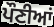
ਪੌਣੀਆਂ